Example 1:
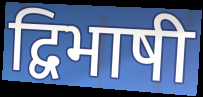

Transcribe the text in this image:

द्विभाषी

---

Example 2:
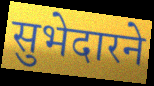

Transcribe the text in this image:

सुभेदारने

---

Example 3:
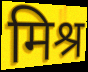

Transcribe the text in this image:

मिश्र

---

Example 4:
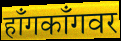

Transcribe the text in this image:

हॉंगकॉंगवर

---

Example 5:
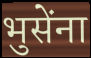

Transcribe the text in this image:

भुसेंना